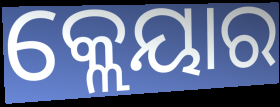
କ୍ଲେୟାର